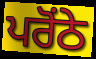
ਪਰੋਂਠੇ